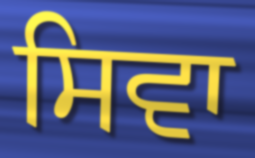
ਸਿਵਾ